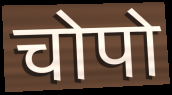
चोपो